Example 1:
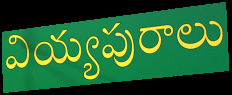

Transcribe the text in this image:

వియ్యపురాలు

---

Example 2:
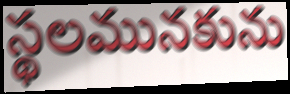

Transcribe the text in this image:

స్థలమునకును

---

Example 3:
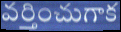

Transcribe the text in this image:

వర్తించుగాక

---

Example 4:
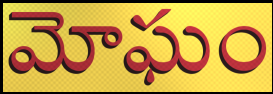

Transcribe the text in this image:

మోఘం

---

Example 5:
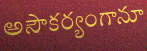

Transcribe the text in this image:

అసౌకర్యంగానూ